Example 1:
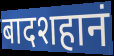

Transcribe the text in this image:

बादशहानं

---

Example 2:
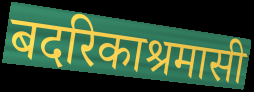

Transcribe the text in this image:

बदरिकाश्रमासी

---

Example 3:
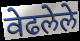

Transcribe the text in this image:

वेढलेले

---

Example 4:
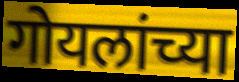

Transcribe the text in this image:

गोयलांच्या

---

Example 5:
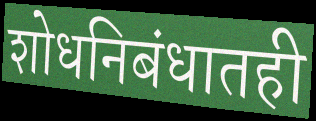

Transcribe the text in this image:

शोधनिबंधातही